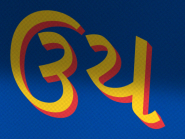
ઉય